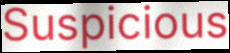
Suspicious